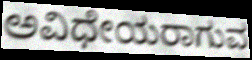
ಅವಿಧೇಯರಾಗುವ